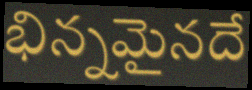
భిన్నమైనదే